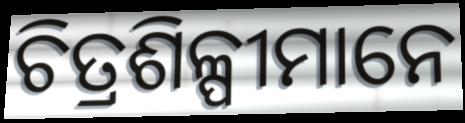
ଚିତ୍ରଶିଳ୍ପୀମାନେ